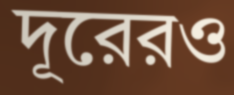
দূরেরও